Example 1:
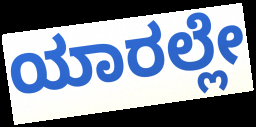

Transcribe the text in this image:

ಯಾರಲ್ಲೇ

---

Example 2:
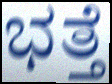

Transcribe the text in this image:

ಭತ್ತೆ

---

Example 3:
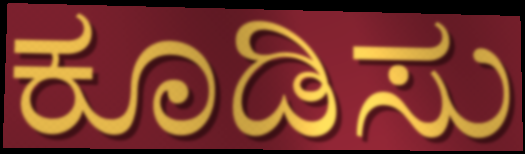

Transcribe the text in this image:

ಕೂಡಿಸು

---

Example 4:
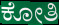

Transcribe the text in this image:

ಕೋತಿ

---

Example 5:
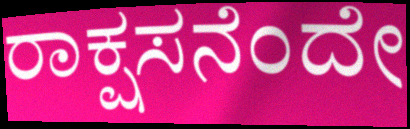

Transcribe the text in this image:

ರಾಕ್ಷಸನೆಂದೇ